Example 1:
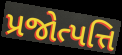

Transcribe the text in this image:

પ્રજોત્પત્તિ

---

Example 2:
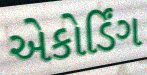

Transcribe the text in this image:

એકોર્ડિંગ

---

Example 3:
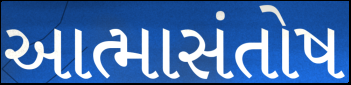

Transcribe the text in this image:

આત્માસંતોષ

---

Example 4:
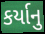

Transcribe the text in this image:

કર્યાનુ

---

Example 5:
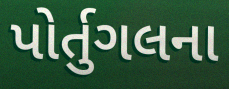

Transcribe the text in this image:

પોર્તુગલના